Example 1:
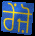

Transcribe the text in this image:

ਰੇਂਜ਼ੋ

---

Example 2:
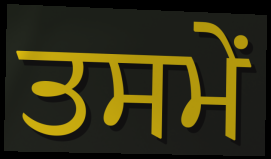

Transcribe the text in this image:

ਤਸਮੇਂ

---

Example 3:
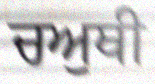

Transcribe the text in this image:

ਚਅੁਥੀ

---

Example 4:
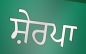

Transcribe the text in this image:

ਸ਼ੇਰਪਾ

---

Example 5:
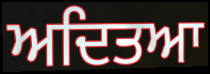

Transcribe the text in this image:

ਅਦਿਤਆ